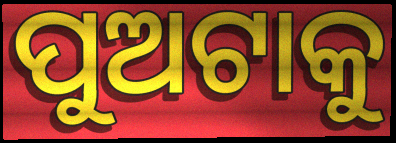
ପୁଅଟାକୁ